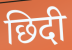
छिदी